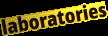
laboratories